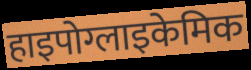
हाइपोग्लाइकेमिक